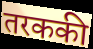
तरककी